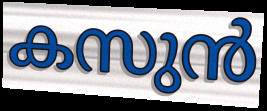
കസുൻ